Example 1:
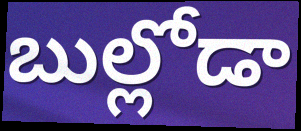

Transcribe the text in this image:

బుల్లోడా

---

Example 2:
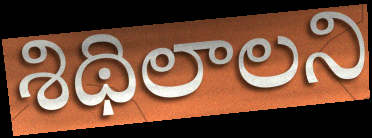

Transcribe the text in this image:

శిథిలాలని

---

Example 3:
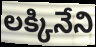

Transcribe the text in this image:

లక్కినేని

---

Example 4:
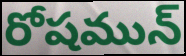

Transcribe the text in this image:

రోషమున్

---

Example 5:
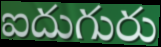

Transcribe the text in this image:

ఐదుగురు